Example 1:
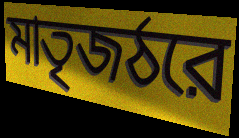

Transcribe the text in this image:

মাতৃজঠরে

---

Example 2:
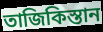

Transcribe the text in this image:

তাজিকিস্তান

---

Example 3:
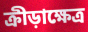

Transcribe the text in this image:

ক্রীড়াক্ষেত্র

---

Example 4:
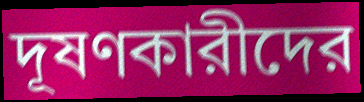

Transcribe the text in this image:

দূষণকারীদের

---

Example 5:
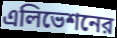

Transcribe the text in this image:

এলিভেশনের